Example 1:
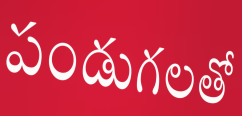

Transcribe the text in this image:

పండుగలతో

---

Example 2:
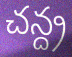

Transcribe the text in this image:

చన్ద్ర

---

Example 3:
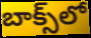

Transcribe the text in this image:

బాక్స్‌లో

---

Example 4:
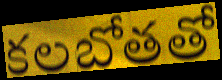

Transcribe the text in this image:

కలబోతతో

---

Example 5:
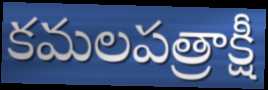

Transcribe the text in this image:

కమలపత్రాక్షీ